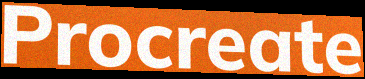
Procreate